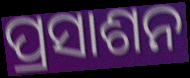
ପ୍ରସାଶନ